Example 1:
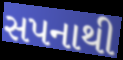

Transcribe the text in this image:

સપનાથી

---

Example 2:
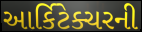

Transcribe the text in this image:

આર્કિટેક્ચરની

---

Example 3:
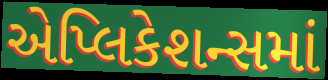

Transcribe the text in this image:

એપ્લિકેશન્સમાં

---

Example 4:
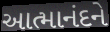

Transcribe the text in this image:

આત્માનંદને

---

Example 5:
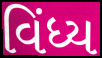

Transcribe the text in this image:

વિંધ્ય